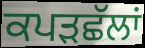
ਕਪੜਛੱਲਾਂ